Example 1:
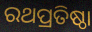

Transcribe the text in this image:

ରଥପ୍ରତିଷ୍ଠା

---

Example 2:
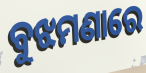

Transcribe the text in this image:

ବୁଝମଣାରେ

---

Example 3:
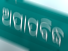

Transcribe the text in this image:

ଅପାପବିଦ୍ଧ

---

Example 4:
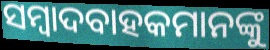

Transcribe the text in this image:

ସମ୍ବାଦବାହକମାନଙ୍କୁ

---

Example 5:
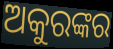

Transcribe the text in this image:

ଅକୁରଙ୍କର